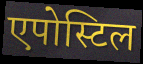
एपोस्टिल